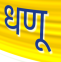
धणू